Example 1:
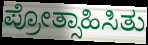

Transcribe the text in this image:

ಪ್ರೋತ್ಸಾಹಿಸಿತು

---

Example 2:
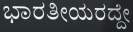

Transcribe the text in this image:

ಭಾರತೀಯರದ್ದೇ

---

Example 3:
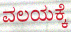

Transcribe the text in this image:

ವಲಯಕ್ಕೆ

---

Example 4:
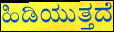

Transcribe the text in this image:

ಹಿಡಿಯುತ್ತದೆ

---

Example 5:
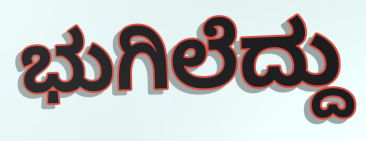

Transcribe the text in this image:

ಭುಗಿಲೆದ್ದು